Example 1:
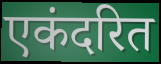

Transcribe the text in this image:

एकंदरित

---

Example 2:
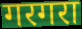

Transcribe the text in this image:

गरगरा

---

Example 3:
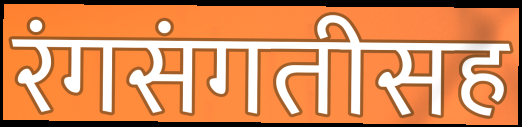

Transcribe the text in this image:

रंगसंगतीसह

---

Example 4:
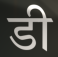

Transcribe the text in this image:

डी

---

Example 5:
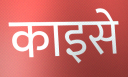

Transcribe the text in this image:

काइसे